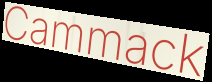
Cammack